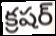
క్రషర్